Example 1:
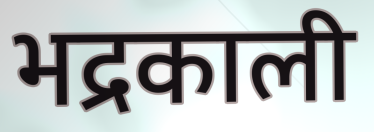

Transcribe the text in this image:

भद्रकाली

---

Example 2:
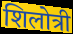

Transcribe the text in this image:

शिलोत्री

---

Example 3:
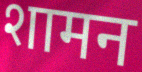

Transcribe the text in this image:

शामन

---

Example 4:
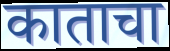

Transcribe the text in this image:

काताचा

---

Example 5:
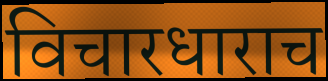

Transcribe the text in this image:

विचारधाराच